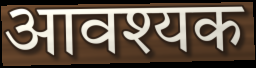
आवश्‍यक